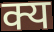
क्य